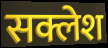
सक्लेश